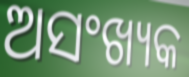
ଅସଂଖ୍ୟକ